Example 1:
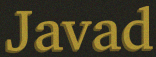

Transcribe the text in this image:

Javad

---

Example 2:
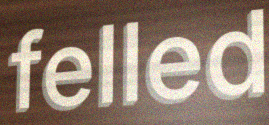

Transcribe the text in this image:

felled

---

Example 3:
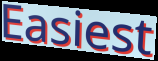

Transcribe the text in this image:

Easiest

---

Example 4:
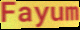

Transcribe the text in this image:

Fayum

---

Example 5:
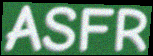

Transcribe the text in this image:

ASFR